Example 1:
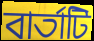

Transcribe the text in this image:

বার্তাটি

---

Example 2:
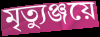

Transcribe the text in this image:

মৃত্যুঞ্জয়ে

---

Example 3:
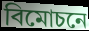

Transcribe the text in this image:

বিমোচনে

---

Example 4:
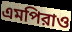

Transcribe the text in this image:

এমপিরাও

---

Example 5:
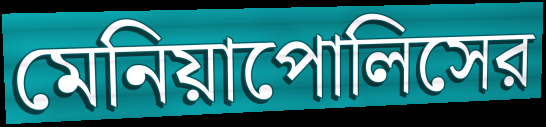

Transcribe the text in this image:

মেনিয়াপোলিসের